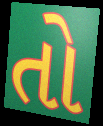
તો